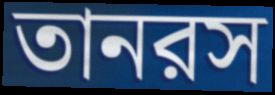
তানরস